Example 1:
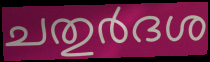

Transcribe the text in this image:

ചതുർദശ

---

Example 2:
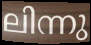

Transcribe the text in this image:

ലിന്നു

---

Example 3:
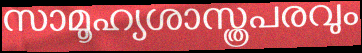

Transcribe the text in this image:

സാമൂഹ്യശാസ്ത്രപരവും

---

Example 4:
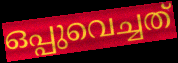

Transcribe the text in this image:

ഒപ്പുവെച്ചത്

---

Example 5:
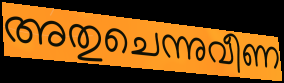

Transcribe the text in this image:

അതുചെന്നുവീണ